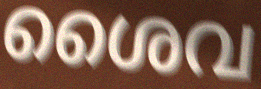
ശൈവ